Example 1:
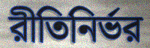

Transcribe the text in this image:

রীতিনির্ভর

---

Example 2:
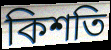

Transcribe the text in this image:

কিশতি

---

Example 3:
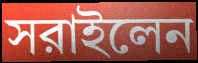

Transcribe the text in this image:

সরাইলেন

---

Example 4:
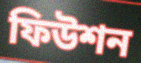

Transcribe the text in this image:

ফিউশন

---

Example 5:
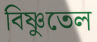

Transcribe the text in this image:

বিষ্ণুতেল